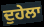
ਦੁਹੇਲਾ